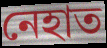
নেহাত